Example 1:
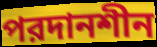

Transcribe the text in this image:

পরদানশীন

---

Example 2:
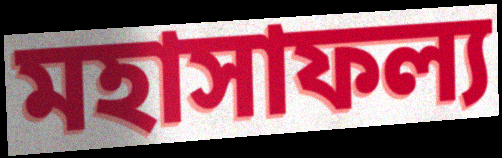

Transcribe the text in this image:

মহাসাফল্য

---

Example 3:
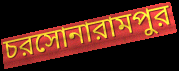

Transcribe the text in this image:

চরসোনারামপুর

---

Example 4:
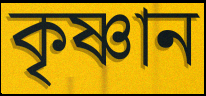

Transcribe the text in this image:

কৃষ্ণান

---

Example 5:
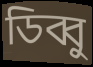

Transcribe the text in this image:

ডিব্বু